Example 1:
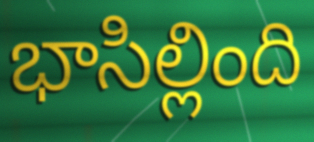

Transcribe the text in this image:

భాసిల్లింది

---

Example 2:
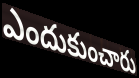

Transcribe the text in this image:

ఎందుకుంచారు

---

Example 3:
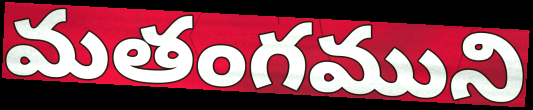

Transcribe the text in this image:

మతంగముని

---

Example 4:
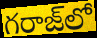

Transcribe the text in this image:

గరాజ్‌లో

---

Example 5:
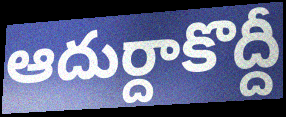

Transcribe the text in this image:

ఆదుర్దాకొద్దీ